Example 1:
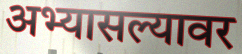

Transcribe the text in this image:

अभ्यासल्यावर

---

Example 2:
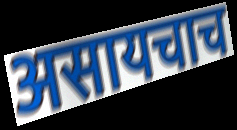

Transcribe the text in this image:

असायचाच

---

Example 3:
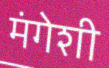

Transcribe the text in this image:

मंगेशी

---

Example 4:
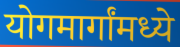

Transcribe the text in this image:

योगमार्गांमध्ये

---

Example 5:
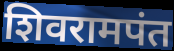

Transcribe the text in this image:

शिवरामपंत